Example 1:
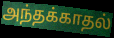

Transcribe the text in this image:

அந்தக்காதல்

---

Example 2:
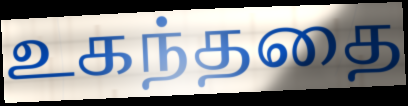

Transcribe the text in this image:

உகந்ததை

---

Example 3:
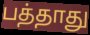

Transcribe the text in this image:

பத்தாது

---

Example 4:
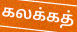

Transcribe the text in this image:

கலக்கத்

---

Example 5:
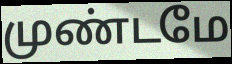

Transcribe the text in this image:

முண்டமே